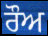
ਰੌਅ